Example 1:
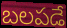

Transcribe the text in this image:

బలపడే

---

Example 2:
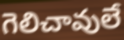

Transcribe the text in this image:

గెలిచావులే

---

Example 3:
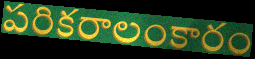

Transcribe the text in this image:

పరికరాలంకారం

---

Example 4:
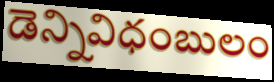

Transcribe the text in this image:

డెన్నివిధంబులం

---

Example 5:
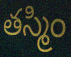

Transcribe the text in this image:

తస్మిం